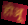
होअू